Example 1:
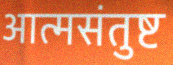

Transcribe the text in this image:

आत्मसंतुष्ट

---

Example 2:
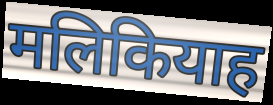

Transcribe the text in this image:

मलिकियाह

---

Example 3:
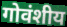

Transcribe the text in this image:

गोवंशीय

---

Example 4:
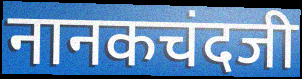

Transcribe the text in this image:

नानकचंदजी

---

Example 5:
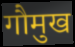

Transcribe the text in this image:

गौमुख